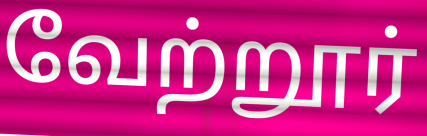
வேற்றூர்